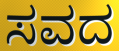
ಸವದ